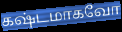
கஷ்டமாகவோ